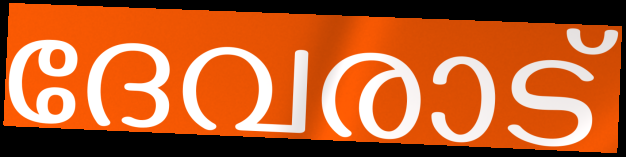
ദേവരാട്